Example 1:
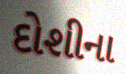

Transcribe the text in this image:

દોશીના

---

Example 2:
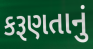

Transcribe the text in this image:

કરૂણતાનું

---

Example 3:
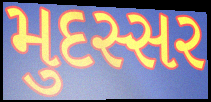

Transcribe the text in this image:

મુદસ્સર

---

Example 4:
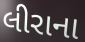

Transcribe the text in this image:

લીરાના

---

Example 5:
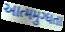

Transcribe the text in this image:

આત્મમુગ્ધતા